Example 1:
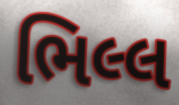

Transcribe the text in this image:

ભિલ્લ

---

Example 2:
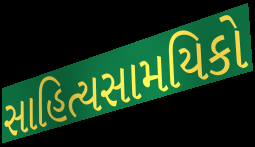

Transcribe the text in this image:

સાહિત્યસામયિકો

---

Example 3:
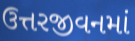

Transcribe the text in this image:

ઉત્તરજીવનમાં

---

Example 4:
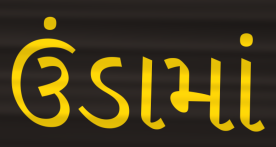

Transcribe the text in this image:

ઉંડામાં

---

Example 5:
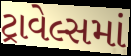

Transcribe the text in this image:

ટ્રાવેલ્સમાં